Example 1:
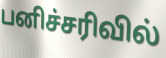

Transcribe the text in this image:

பனிச்சரிவில்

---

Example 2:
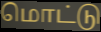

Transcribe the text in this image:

மொட்டு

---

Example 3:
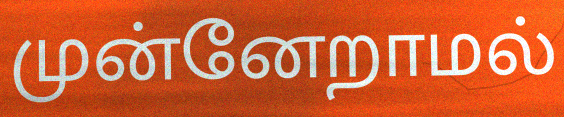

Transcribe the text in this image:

முன்னேறாமல்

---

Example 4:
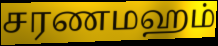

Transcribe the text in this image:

சரணமஹம்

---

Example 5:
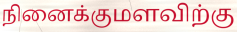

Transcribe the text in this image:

நினைக்குமளவிற்கு